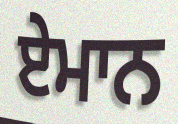
ਏਮਾਨ